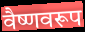
वैष्णवरूप